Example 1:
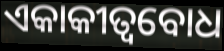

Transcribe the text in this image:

ଏକାକୀତ୍ୱବୋଧ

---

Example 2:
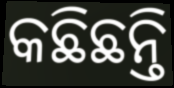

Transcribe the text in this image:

କଛିଛନ୍ତି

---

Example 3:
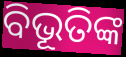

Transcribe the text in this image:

ବିଭୂତିଙ୍କ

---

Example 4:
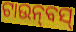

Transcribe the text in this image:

ଟାଉନ୍‍ବସ୍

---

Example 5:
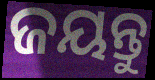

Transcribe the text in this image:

ଜୟନ୍ତୁ